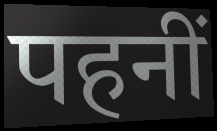
पहनीं